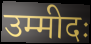
उम्मीदः